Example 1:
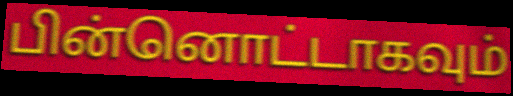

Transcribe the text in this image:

பின்னொட்டாகவும்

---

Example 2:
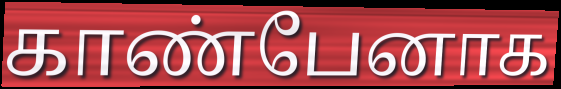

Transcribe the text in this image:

காண்பேனாக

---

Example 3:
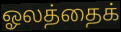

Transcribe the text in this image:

ஓலத்தைக்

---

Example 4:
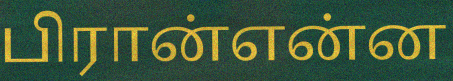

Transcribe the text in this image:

பிரான்என்ன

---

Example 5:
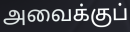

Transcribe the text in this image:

அவைக்குப்